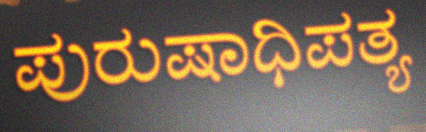
ಪುರುಷಾಧಿಪತ್ಯ